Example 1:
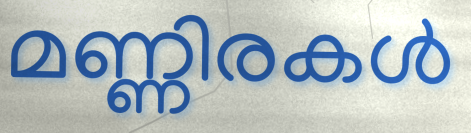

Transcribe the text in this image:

മണ്ണിരകൾ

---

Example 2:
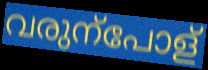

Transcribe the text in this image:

വരുന്പോള്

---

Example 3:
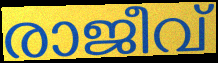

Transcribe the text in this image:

രാജീവ്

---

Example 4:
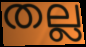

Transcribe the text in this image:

തല്ല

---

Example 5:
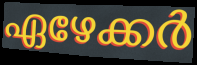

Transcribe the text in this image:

ഏഴേക്കർ